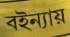
বইন্যায়